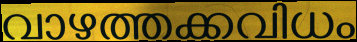
വാഴത്തക്കവിധം